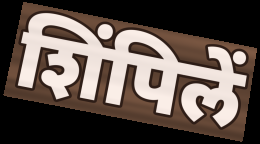
शिंपिलें